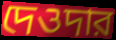
দেওদার